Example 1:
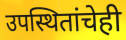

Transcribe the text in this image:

उपस्थितांचेही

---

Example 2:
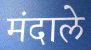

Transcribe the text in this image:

मंदाले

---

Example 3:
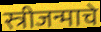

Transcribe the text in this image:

स्त्रीजन्माचे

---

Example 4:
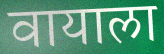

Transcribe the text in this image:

वायाला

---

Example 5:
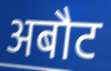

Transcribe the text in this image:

अबौट